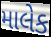
માલેક